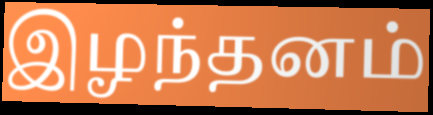
இழந்தனம்